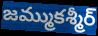
జమ్ముకశ్మీర్